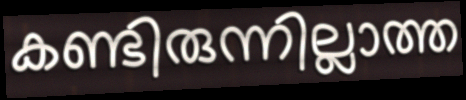
കണ്ടിരുന്നില്ലാത്ത